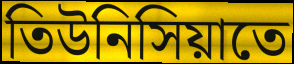
তিউনিসিয়াতে